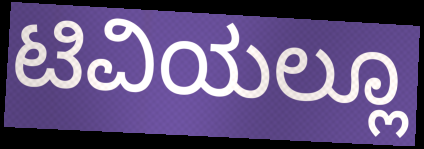
ಟಿವಿಯಲ್ಲೂ